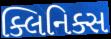
ક્લિનિક્સ